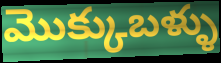
మొక్కుబళ్ళు